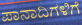
ಪಾನಾದಿಗಳಿಗೆ